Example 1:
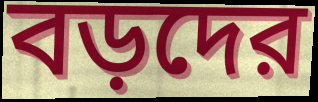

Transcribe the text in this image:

বড়দের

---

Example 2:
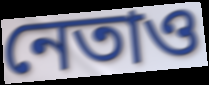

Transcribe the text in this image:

নেতাও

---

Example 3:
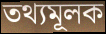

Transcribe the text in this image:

তথ্যমূলক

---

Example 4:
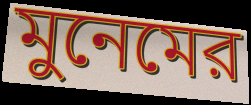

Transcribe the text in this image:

মুনেমের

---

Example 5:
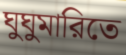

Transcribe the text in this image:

ঘুঘুমারিতে